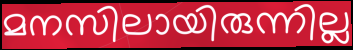
മനസിലായിരുന്നില്ല